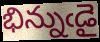
భిన్నుఁడై